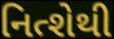
નિત્શેથી